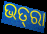
ଭତ୍‌ରା